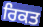
ਰਿਕਤ